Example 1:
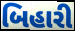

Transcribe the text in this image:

બિહારી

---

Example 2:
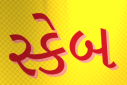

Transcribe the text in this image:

સ્કેબ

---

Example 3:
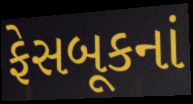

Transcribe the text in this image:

ફેસબૂકનાં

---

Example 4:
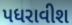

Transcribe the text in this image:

પધરાવીશ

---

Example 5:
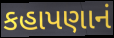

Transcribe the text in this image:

કહાપણાનં